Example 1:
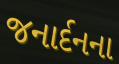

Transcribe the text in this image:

જનાર્દનના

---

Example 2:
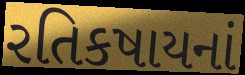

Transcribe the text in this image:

રતિકષાયનાં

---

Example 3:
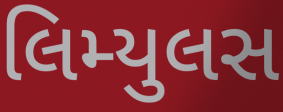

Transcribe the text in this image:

લિમ્યુલસ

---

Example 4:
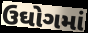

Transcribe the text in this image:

ઉઘોગમાં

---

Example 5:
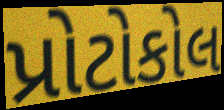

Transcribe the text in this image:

પ્રોટોકોલ